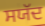
ਸਯੱਦ